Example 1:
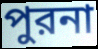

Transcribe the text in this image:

পুরনা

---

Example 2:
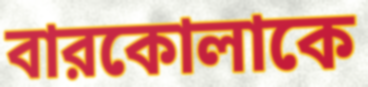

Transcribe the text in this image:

বারকোলাকে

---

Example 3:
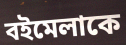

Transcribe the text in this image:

বইমেলাকে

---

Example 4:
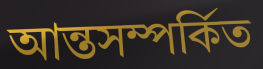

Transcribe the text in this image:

আন্তসম্পর্কিত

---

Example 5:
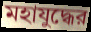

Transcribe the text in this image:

মহাযুদ্ধের